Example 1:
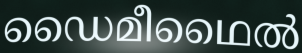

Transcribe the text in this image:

ഡൈമീഥൈൽ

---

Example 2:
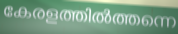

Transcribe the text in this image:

കേരളത്തിൽത്തന്നെ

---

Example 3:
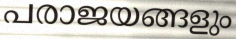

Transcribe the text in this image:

പരാജയങ്ങളും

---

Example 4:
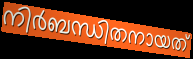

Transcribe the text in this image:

നിർബന്ധിതനായത്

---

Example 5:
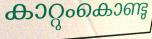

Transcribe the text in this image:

കാറ്റുംകൊണ്ടു